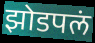
झोडपलं